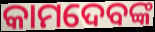
କାମଦେବଙ୍କ